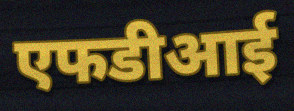
एफडीआई